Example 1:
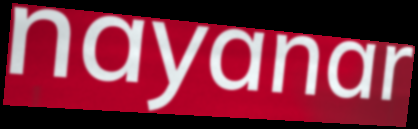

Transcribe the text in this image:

nayanar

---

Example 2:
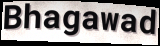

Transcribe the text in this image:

Bhagawad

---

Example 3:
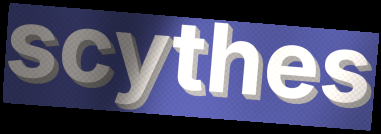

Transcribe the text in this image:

scythes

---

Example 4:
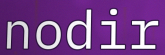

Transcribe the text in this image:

nodir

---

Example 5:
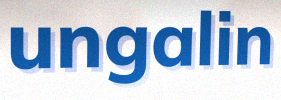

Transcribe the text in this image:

ungalin